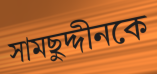
সামছুদ্দীনকে